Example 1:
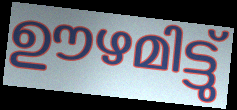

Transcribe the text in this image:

ഊഴമിട്ടു്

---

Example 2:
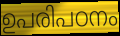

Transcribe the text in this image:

ഉപരിപഠനം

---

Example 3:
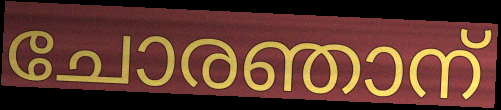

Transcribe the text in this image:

ചോരഞാന്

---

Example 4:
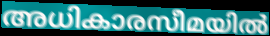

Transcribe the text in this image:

അധികാരസീമയിൽ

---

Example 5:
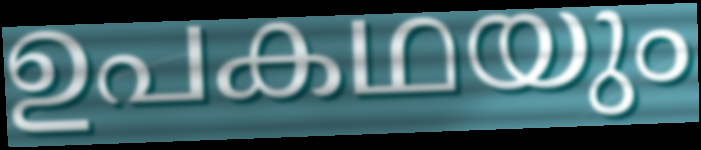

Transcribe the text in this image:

ഉപകഥയും